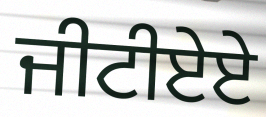
ਜੀਟੀਏਏ